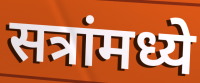
सत्रांमध्ये